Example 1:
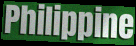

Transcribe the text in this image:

Philippine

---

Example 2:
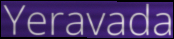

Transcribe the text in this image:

Yeravada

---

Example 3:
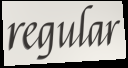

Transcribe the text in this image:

regular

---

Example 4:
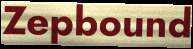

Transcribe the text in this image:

Zepbound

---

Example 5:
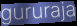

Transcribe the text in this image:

gururaja